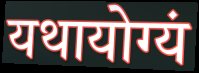
यथायोग्यं